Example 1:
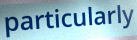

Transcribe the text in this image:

particularly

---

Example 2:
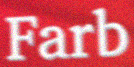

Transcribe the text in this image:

Farb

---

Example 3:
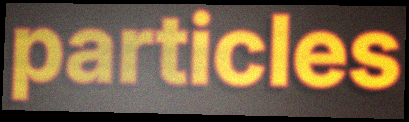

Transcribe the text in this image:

particles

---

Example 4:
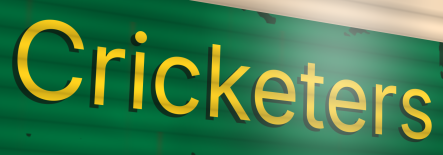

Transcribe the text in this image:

Cricketers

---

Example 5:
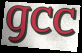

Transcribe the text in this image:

gcc